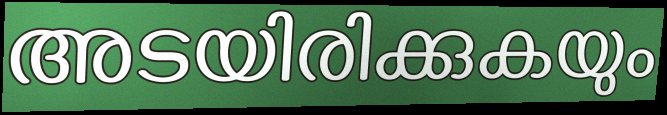
അടയിരിക്കുകയും